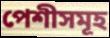
পেশীসমূহ